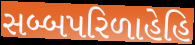
સબ્બપરિળાહેહિ